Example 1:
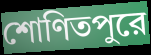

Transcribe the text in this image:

শোণিতপুরে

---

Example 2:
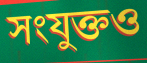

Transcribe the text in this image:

সংযুক্তও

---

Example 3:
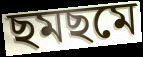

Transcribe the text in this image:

ছমছমে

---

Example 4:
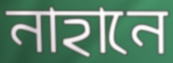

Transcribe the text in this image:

নাহানে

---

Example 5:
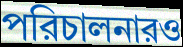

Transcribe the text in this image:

পরিচালনারও